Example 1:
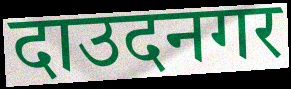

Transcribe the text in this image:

दाउदनगर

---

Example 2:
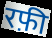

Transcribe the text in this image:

रफ़ी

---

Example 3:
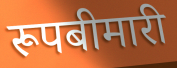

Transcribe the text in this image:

रूपबीमारी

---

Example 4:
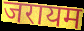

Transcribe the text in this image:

जरायम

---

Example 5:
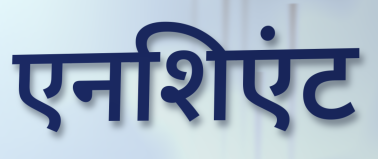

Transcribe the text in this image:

एनशिएंट